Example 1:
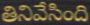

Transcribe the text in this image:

తినివేసింది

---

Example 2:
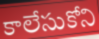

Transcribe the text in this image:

కాలేసుకోని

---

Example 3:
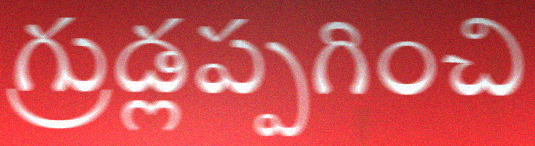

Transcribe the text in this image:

గ్రుడ్లప్పగించి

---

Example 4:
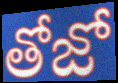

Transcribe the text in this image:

తోజో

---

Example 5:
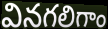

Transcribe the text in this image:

వినగలిగాం